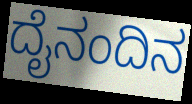
ದೈನಂದಿನ